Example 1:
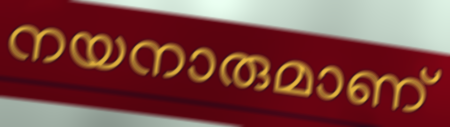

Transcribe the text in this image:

നയനാരുമാണ്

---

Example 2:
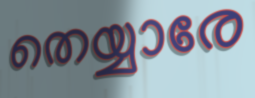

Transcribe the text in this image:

തെയ്യാരേ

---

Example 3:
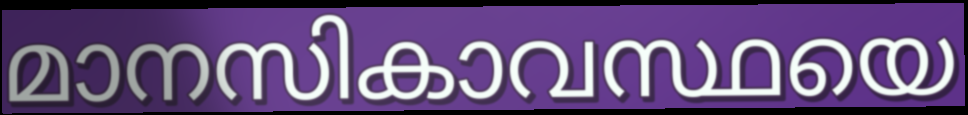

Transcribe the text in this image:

മാനസികാവസ്ഥയെ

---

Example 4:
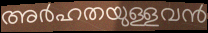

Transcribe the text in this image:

അർഹതയുള്ളവൻ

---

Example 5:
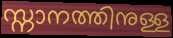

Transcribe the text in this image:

സ്നാനത്തിനുള്ള